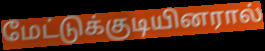
மேட்டுக்குடியினரால்